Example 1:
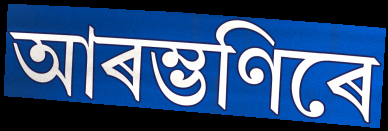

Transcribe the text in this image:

আৰম্ভণিৰে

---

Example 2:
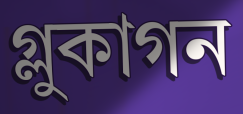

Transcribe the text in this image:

গ্লুকাগন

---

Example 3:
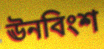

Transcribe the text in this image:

ঊনবিংশ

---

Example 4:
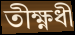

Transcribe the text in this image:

তীক্ষ্ণধী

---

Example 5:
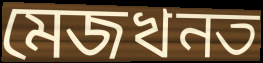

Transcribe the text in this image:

মেজখনত